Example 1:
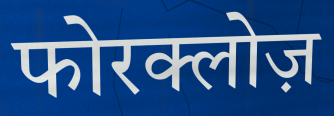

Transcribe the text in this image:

फोरक्लोज़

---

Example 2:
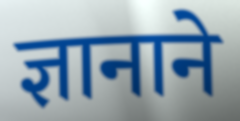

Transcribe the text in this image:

ज्ञानाने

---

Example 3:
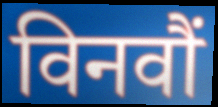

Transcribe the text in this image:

विनवौं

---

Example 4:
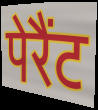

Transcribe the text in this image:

पेरैंट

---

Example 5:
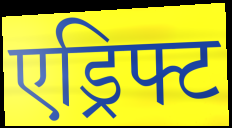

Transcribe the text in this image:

एड्रिफ्ट